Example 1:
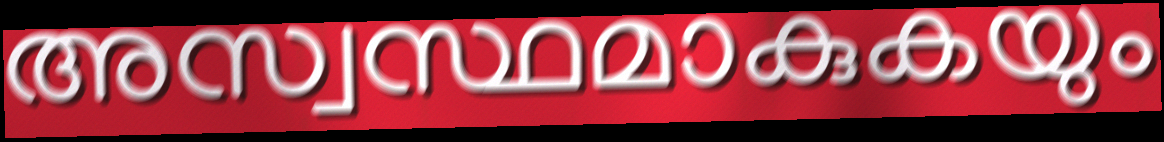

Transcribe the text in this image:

അസ്വസ്ഥമാകുകയും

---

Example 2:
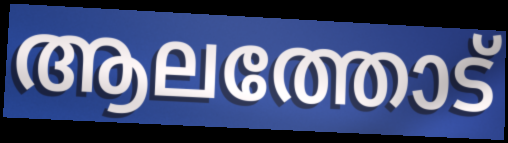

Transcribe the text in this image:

ആലത്തോട്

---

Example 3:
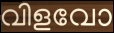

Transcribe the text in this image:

വിളവോ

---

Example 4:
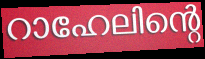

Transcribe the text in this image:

റാഹേലിന്റെ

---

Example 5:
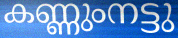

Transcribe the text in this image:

കണ്ണുംനട്ടു